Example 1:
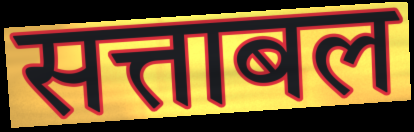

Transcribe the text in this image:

सत्ताबल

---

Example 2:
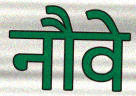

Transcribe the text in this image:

नौवे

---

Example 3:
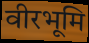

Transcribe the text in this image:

वीरभूमि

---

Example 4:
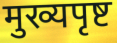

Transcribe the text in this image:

मुख्यपृष्ट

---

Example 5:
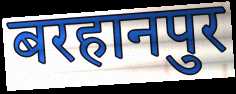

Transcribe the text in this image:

बरहानपुर